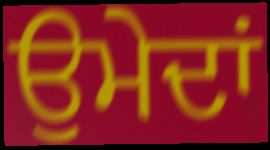
ਉਮੇਦਾਂ